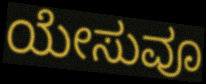
ಯೇಸುವೂ